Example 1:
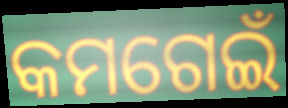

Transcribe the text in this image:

କମଗେଇଁ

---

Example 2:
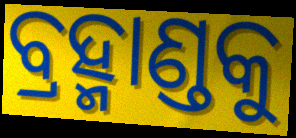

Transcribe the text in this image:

ବ୍ରହ୍ମାଣ୍ଡକୁ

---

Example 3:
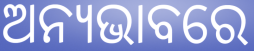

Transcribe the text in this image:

ଅନ୍ୟଭାବରେ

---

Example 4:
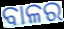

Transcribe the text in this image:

ବାଳର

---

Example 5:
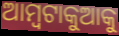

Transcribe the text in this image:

ଆମ୍ବଟାକୁଆକୁ